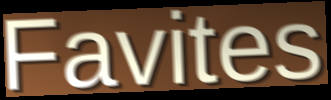
Favites